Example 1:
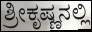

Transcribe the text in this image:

ಶ್ರೀಕೃಷ್ಣನಲ್ಲಿ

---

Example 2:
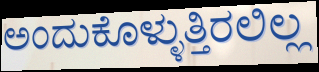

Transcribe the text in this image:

ಅಂದುಕೊಳ್ಳುತ್ತಿರಲಿಲ್ಲ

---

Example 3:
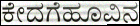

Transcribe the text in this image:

ಕೇದಗೆಹೂವಿನ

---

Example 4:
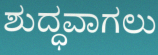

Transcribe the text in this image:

ಶುದ್ಧವಾಗಲು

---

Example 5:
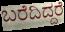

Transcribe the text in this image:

ಬರೆದಿದ್ದರೆ